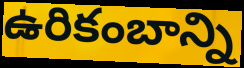
ఉరికంబాన్ని